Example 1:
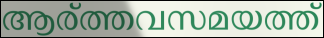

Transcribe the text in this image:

ആര്ത്തവസമയത്ത്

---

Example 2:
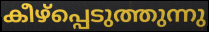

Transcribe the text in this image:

കീഴ്പ്പെടുത്തുന്നു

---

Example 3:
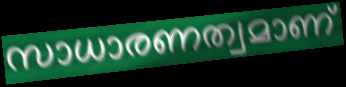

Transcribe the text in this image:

സാധാരണത്വമാണ്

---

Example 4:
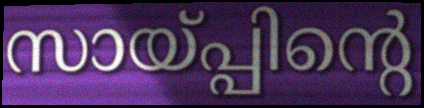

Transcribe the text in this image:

സായ്പ്പിന്റെ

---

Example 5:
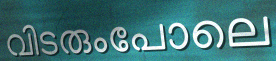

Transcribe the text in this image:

വിടരുംപോലെ